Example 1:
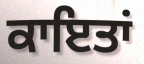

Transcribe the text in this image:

ਕਾਇਤਾਂ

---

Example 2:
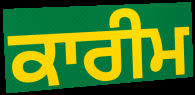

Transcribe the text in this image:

ਕਾਰੀਮ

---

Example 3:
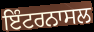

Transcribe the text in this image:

ਇੰਟਰਨਾਸਲ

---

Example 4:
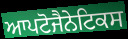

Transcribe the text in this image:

ਆਪਟੋਜੈਨੇਟਿਕਸ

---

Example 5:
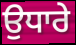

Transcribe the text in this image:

ਉਧਾਰੇ